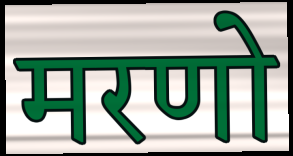
मरणो